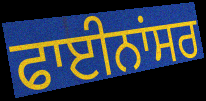
ਫਾਈਨਾਂਸਰ